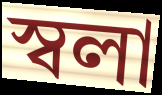
স্বলা